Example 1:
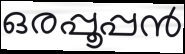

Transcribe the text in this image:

ഒരപ്പൂപ്പൻ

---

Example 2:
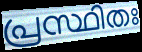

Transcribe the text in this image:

പ്രസ്ഥിതഃ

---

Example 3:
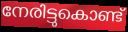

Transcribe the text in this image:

നേരിട്ടുകൊണ്ട്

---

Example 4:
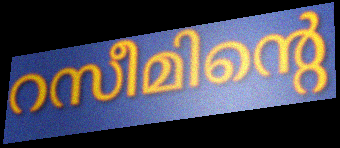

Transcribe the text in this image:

റസീമിന്റെ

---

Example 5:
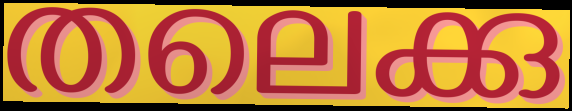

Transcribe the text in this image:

തലെക്കു